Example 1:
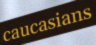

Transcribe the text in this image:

caucasians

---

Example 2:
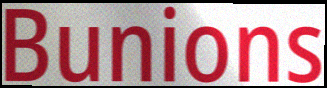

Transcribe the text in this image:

Bunions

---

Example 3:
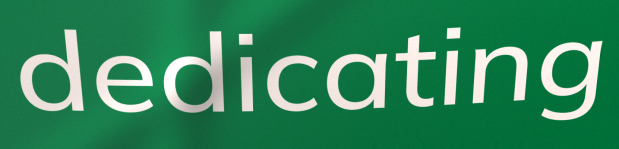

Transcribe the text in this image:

dedicating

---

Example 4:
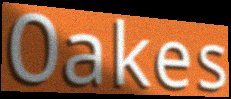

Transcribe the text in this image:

Oakes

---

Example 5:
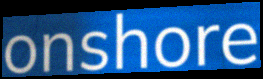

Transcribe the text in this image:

onshore